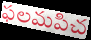
ఫలమపిచ